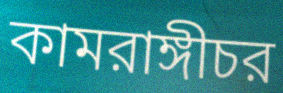
কামরাঙ্গীচর